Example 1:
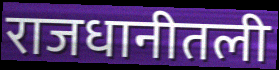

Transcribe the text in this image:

राजधानीतली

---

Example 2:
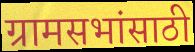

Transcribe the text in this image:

ग्रामसभांसाठी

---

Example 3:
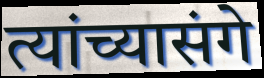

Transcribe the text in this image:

त्यांच्यासंगे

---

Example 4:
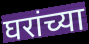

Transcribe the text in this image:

घरांच्या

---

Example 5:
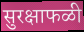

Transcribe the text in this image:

सुरक्षाफळी